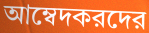
আম্বেদকরদের